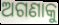
ଅଗଣାକୁ